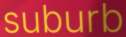
suburb